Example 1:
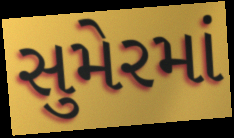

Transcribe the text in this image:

સુમેરમાં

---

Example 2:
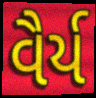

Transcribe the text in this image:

વૈર્ય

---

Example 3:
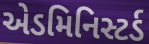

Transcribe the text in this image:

એડમિનિસ્ટર્ડ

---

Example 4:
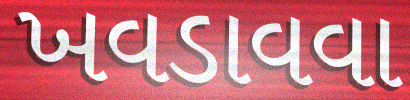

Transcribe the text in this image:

ખવડાવવા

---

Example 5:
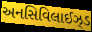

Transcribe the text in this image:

અનસિવિલાઈઝ્ડ